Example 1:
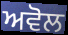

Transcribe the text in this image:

ਅਵੋਲ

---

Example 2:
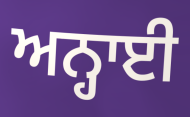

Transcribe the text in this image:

ਅਨ੍ਹਾਈ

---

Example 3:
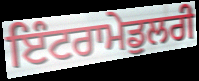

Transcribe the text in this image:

ਇੰਟਰਾਮੇਡੁਲਰੀ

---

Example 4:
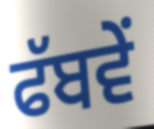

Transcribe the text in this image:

ਫੱਬਵੇਂ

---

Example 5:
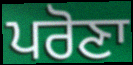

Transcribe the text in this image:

ਪਰੋਣਾ